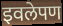
इवलेपण